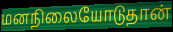
மனநிலையோடுதான்